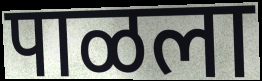
पाळला